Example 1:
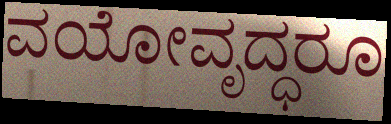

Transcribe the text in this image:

ವಯೋವೃದ್ಧರೂ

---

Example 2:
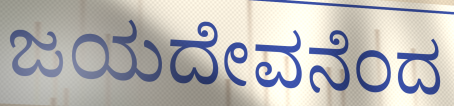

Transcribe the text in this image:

ಜಯದೇವನೆಂದ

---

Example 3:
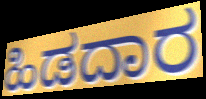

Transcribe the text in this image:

ಹಿಡದಾರ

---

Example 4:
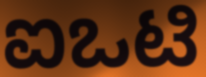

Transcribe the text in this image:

ಐಒಟಿ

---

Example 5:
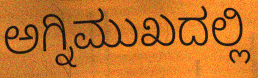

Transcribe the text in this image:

ಅಗ್ನಿಮುಖದಲ್ಲಿ